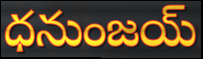
ధనుంజయ్